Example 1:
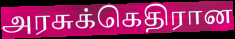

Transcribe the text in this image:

அரசுக்கெதிரான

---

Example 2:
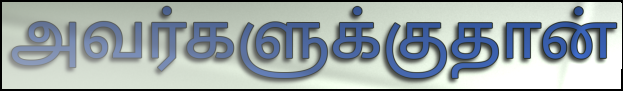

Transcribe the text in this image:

அவர்களுக்குதான்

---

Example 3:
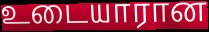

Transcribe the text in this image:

உடையாரான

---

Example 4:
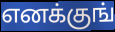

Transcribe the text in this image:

எனக்குங்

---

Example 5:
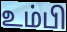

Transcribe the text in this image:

உம்பி